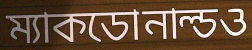
ম্যাকডোনাল্ডও